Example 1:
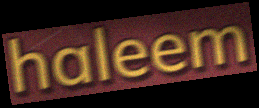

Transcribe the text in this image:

haleem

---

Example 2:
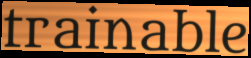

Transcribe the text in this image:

trainable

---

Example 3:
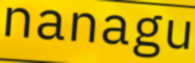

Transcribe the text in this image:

nanagu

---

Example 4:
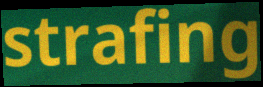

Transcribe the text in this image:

strafing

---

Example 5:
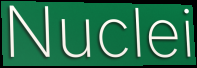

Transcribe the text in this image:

Nuclei